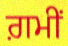
ਗ਼ਮੀਂ